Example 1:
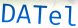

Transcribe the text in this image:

DATel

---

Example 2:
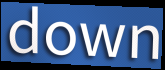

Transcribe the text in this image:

down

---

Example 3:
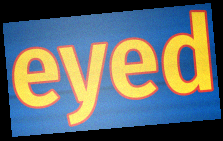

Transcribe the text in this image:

eyed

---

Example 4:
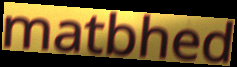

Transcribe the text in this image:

matbhed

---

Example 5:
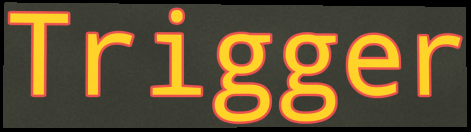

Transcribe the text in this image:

Trigger